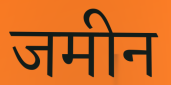
जमीन